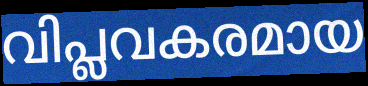
വിപ്ലവകരമായ